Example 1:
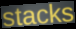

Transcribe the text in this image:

stacks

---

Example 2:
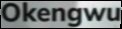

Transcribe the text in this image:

Okengwu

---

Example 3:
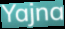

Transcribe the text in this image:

Yajna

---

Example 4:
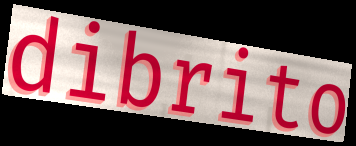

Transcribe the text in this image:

dibrito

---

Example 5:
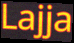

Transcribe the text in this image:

Lajja